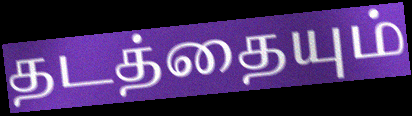
தடத்தையும்